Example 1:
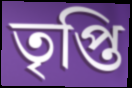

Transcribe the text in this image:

তৃপ্তি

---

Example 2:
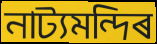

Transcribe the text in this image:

নাট্যমন্দিৰ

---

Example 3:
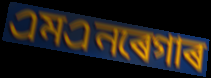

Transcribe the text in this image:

এমএনৰেগাৰ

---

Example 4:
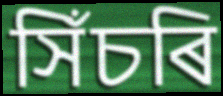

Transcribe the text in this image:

সিঁচৰি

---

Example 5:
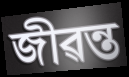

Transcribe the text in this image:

জীৱন্ত